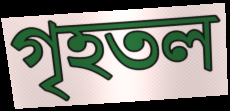
গৃহতল